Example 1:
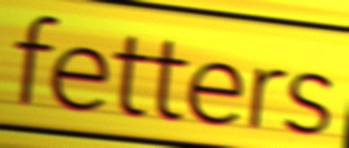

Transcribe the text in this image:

fetters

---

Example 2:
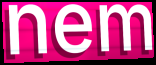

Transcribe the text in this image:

nem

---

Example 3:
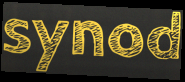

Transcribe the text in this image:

synod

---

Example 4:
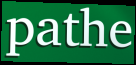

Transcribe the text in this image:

pathe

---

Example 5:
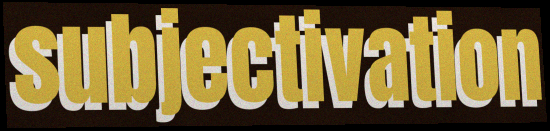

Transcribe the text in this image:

subjectivation